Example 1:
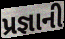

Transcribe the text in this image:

પ્રજ્ઞાની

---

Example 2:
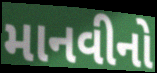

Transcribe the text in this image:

માનવીનો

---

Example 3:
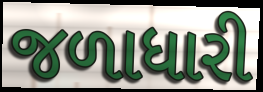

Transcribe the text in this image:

જળાધારી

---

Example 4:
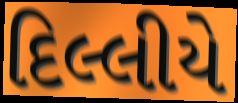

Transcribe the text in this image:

દિલ્લીયે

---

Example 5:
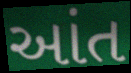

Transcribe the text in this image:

આંત